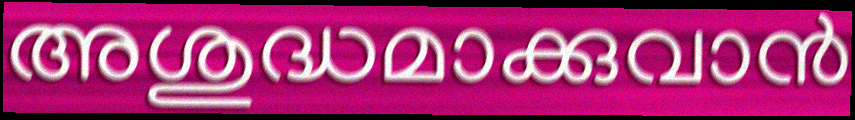
അശുദ്ധമാക്കുവാൻ